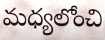
మధ్యలోంచి